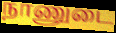
நாணுடை